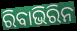
ରିବାଭିରିନ